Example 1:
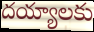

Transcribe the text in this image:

దయ్యాలకు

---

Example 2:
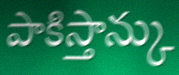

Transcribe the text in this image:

పాకిస్తాన్కు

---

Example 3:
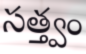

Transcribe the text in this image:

సత్త్వం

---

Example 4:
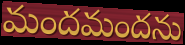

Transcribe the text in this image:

మందమందను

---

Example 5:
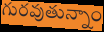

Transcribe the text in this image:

గురవుతున్నాం